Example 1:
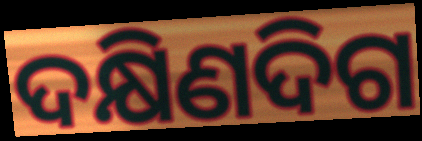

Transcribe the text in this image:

ଦକ୍ଷିଣଦିଗ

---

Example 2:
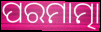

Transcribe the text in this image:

ପରମାତ୍ମା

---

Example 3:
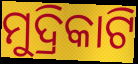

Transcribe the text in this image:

ମୁଦ୍ରିକାଟି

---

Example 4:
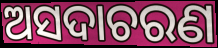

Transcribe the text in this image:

ଅସଦାଚରଣ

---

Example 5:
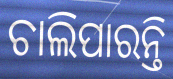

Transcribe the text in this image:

ଚାଲିପାରନ୍ତି